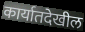
कार्यातदेखील